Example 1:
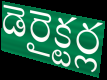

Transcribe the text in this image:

డెరైక్టర్ల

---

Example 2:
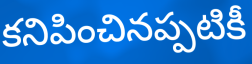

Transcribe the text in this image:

కనిపించినప్పటికీ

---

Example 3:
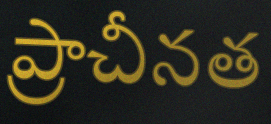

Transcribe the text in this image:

ప్రాచీనత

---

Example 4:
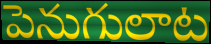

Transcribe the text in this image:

పెనుగులాట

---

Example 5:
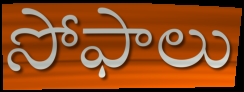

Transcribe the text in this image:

సోఫాలు